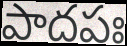
పాదపః